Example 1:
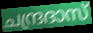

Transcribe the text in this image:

ചന്ദ്രദാസ്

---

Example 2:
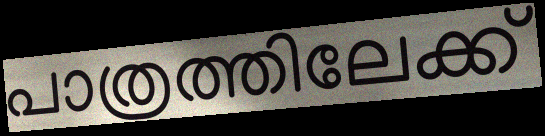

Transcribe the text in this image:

പാത്രത്തിലേക്ക്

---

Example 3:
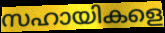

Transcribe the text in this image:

സഹായികളെ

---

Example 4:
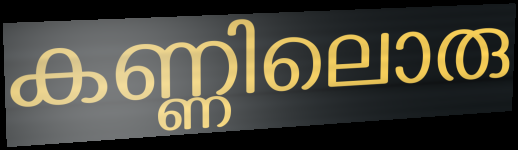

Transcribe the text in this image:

കണ്ണിലൊരു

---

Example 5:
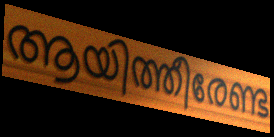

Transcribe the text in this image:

ആയിത്തീരേണ്ട